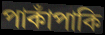
পাকাঁপাকি